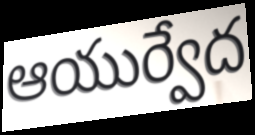
ఆయుర్వేద